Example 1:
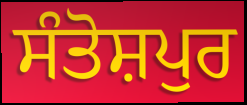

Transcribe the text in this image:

ਸੰਤੋਸ਼ਪੁਰ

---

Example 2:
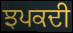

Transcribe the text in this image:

ਝਪਕਦੀ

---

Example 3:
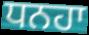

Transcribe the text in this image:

ਧਨਹਾ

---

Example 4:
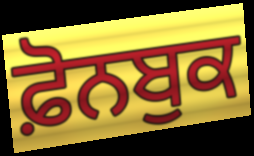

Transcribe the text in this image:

ਫ਼ੋਨਬੁਕ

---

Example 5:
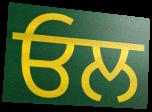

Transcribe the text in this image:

ਓਲ